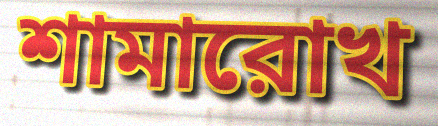
শামারোখ